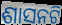
ଶାସନଟି